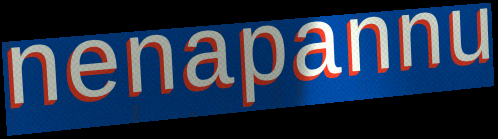
nenapannu